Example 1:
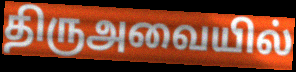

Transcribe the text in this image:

திருஅவையில்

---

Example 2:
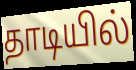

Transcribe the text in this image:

தாடியில்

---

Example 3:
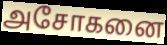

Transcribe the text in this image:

அசோகனை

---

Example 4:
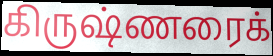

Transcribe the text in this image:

கிருஷ்ணரைக்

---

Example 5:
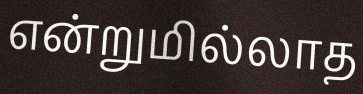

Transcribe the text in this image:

என்றுமில்லாத